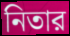
নিতার